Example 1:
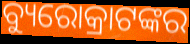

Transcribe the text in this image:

ବ୍ୟୁରୋକ୍ରାଟଙ୍କର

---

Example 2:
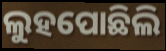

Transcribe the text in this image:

ଲୁହପୋଛିଲି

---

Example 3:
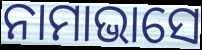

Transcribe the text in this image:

ନାମାଭାସେ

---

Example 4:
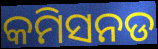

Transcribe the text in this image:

କମିସନଡ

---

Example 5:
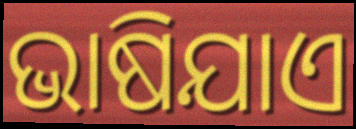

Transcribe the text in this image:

ଭାଷିଯାଏ